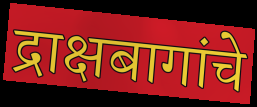
द्राक्षबागांचे